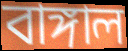
বাঙ্গাল